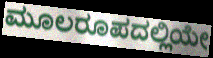
ಮೂಲರೂಪದಲ್ಲಿಯೇ